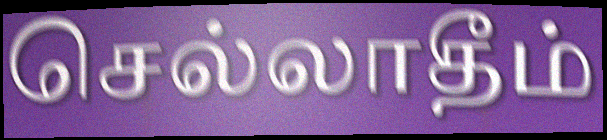
செல்லாதீம்